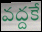
వద్దకే